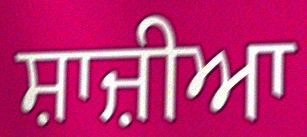
ਸ਼ਾਜ਼ੀਆ